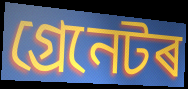
গ্ৰেনেটৰ